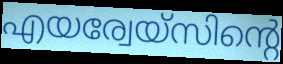
എയര്വേയ്സിന്റെ